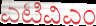
ಎಟಿವಿಎಂ